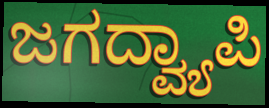
ಜಗದ್ವ್ಯಾಪಿ